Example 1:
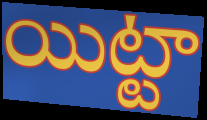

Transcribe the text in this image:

యిట్టా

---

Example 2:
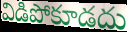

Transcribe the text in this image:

విడిపోకూడదు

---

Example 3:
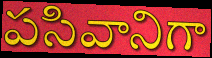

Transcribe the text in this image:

పసివానిగా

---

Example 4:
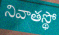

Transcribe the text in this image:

నివాతస్థో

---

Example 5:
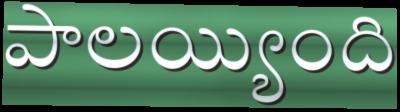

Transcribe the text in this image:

పాలయ్యింది